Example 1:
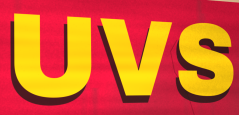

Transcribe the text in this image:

UVS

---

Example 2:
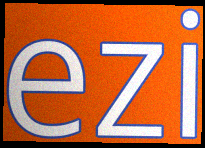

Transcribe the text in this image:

ezi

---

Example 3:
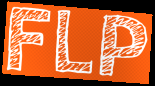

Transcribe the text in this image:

FLP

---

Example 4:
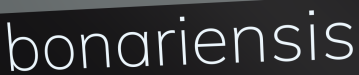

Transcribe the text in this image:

bonariensis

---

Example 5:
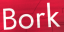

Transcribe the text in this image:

Bork